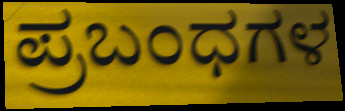
ಪ್ರಬಂಧಗಳ